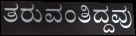
ತರುವಂತಿದ್ದವು